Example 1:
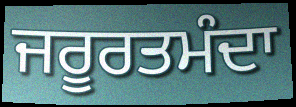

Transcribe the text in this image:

ਜਰੂਰਤਮੰਦਾ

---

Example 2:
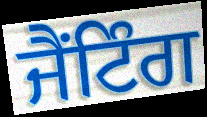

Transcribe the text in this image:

ਜੈਂਟਿੰਗ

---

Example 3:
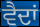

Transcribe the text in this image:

ਵੈਦਾਂ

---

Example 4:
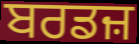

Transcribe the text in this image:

ਬਰਡਜ਼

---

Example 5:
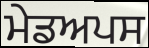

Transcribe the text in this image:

ਮੇਡਅਪਸ